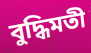
বুদ্ধিমতী